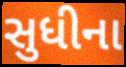
સુધીના